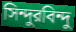
সিন্দুরবিন্দু